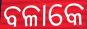
ବଳାକେ